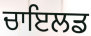
ਚਾਇਲਡ